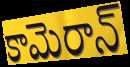
కామెరాన్